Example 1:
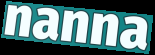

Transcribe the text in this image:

nanna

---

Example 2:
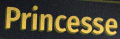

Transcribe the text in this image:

Princesse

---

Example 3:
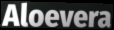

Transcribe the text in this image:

Aloevera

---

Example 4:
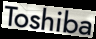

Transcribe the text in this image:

Toshiba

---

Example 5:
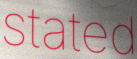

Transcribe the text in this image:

stated